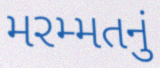
મરમ્મતનું